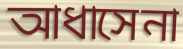
আধাসেনা